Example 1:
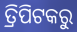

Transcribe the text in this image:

ତ୍ରିପିଟକରୁ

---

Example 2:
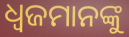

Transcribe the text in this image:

ଧ୍ୱଜମାନଙ୍କୁ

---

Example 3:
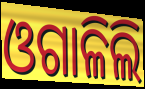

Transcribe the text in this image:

ଓଗାଳିଲି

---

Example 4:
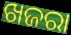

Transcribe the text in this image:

ଖଜରା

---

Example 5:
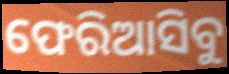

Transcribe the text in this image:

ଫେରିଆସିବୁ